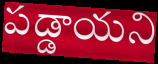
పడ్డాయని